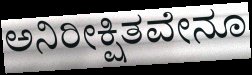
ಅನಿರೀಕ್ಷಿತವೇನೂ